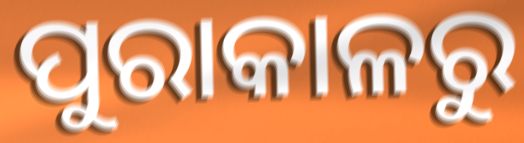
ପୁରାକାଳରୁ